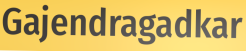
Gajendragadkar